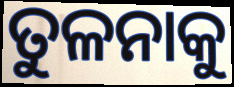
ତୁଳନାକୁ